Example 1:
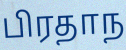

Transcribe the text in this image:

பிரதாந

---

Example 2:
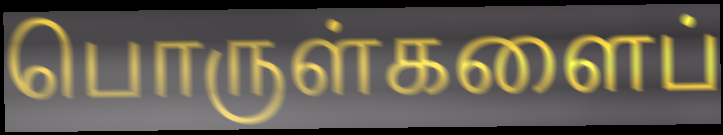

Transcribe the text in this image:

பொருள்களைப்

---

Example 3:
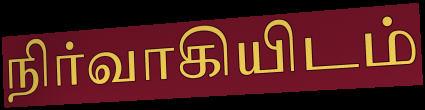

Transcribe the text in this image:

நிர்வாகியிடம்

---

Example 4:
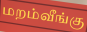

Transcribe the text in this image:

மறம்வீங்கு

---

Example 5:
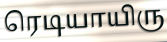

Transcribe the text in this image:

ரெடியாயிரு